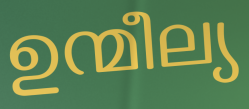
ഉന്മീല്യ